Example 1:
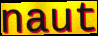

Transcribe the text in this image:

naut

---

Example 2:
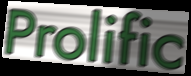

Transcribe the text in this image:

Prolific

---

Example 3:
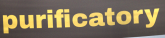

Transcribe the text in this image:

purificatory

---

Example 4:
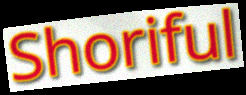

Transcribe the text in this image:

Shoriful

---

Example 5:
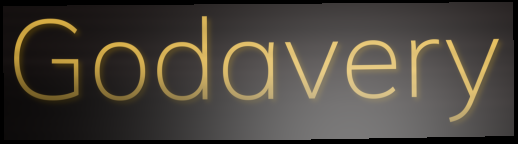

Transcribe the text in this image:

Godavery